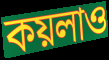
কয়লাও